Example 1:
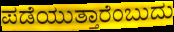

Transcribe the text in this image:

ಪಡೆಯುತ್ತಾರೆಂಬುದು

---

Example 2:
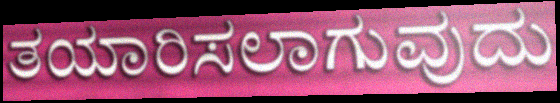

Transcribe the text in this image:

ತಯಾರಿಸಲಾಗುವುದು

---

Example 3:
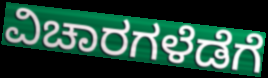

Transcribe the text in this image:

ವಿಚಾರಗಳೆಡೆಗೆ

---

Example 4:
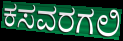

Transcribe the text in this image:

ಕಸವರಗಲಿ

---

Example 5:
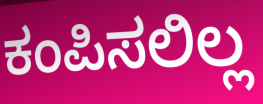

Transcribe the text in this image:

ಕಂಪಿಸಲಿಲ್ಲ